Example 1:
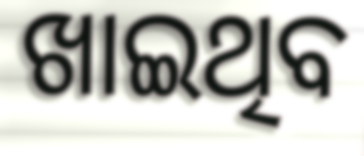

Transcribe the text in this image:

ଖାଇଥିବ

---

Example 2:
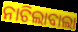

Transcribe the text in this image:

ନାଚିଲାବାଲା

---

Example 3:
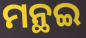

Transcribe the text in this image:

ମନ୍ଥଇ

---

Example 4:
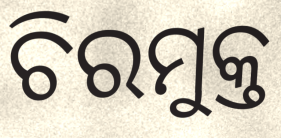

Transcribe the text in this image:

ଚିରମୁକ୍ତ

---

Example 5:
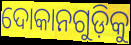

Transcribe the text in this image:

ଦୋକାନଗୁଡ଼ିକୁ